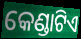
କେଣ୍ଡାଟିଏ